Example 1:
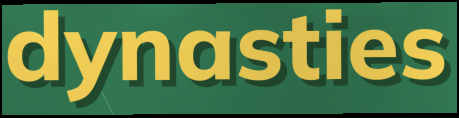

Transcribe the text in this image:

dynasties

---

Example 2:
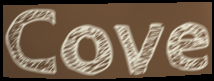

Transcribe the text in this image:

Cove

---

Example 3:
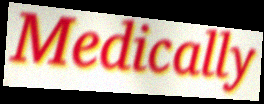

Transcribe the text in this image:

Medically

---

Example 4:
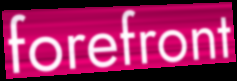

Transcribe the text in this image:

forefront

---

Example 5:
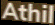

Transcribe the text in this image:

Athil